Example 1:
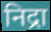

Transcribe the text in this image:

निद्रा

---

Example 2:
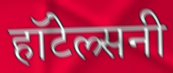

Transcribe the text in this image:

हॉटेल्सनी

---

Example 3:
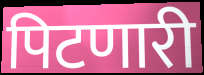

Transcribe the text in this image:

पिटणारी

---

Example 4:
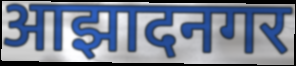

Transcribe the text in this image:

आझादनगर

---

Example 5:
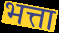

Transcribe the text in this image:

भत्ता